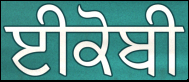
ਈਕੋਬੀ